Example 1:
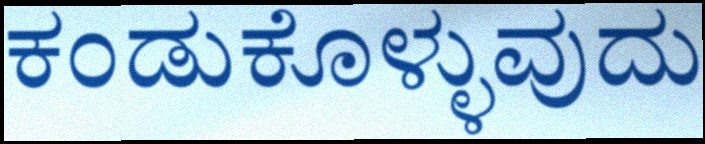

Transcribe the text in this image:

ಕಂಡುಕೊಳ್ಳುವುದು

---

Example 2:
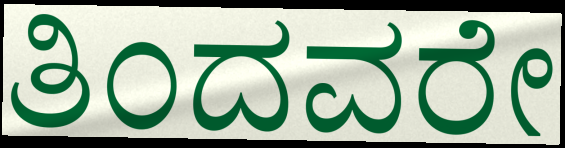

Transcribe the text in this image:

ತಿಂದವರೇ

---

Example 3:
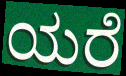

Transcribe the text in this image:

ಯರೆ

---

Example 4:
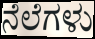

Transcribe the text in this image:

ನೆಲೆಗಳು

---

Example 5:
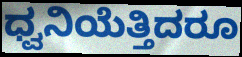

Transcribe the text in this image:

ಧ್ವನಿಯೆತ್ತಿದರೂ